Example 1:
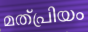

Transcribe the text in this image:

മത്പ്രിയം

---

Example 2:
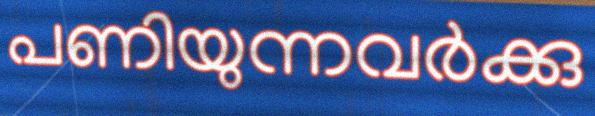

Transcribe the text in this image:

പണിയുന്നവർക്കു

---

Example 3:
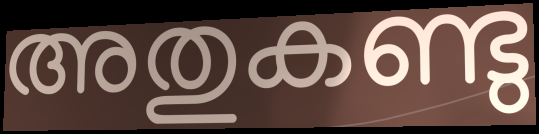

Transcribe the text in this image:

അതുകണ്ടു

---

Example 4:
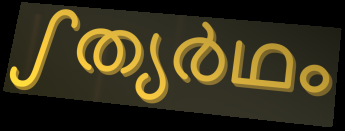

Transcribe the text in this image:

ഽത്യർഥം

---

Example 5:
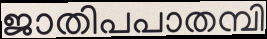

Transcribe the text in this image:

ജാതിപപാതമ്പി